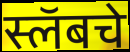
स्लॅबचे